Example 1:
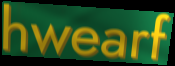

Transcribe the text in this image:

hwearf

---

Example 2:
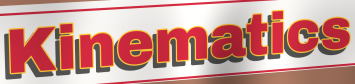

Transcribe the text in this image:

Kinematics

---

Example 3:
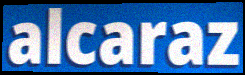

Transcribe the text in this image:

alcaraz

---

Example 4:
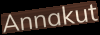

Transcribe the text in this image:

Annakut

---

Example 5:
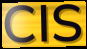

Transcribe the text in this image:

CIS